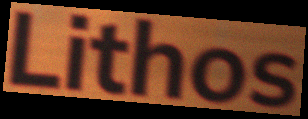
Lithos